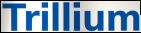
Trillium